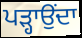
ਪੜ੍ਹਾਉਂਦਾ